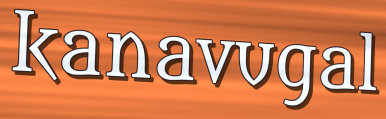
kanavugal